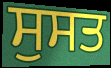
ਸੁਸਤ